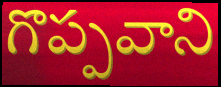
గొప్పవాని